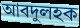
আবদুলহক